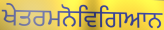
ਖੇਤਰਮਨੋਵਿਗਿਆਨ